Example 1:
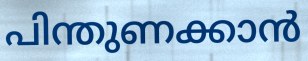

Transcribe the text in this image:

പിന്തുണക്കാൻ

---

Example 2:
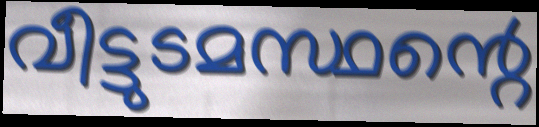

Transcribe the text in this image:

വീട്ടുടമസ്ഥന്റെ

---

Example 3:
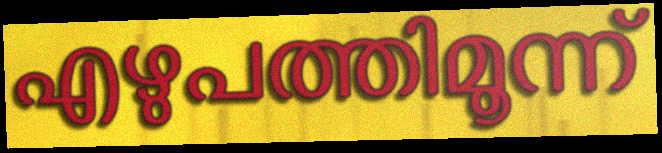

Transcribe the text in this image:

എഴുപത്തിമൂന്ന്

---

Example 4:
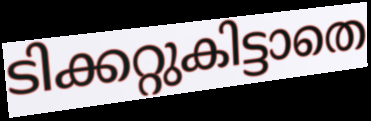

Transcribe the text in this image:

ടിക്കറ്റുകിട്ടാതെ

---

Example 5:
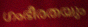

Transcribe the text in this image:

ഗംഭീരതയും